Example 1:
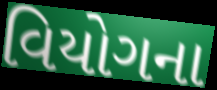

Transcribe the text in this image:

વિયોગના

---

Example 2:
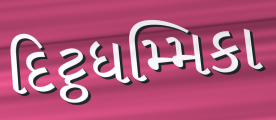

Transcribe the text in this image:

દિટ્ઠધમ્મિકા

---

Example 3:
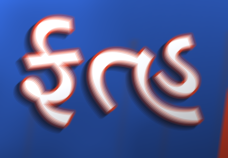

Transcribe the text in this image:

ફત્હ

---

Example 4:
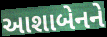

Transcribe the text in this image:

આશાબેનને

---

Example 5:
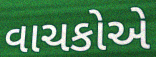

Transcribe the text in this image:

વાચકોએ